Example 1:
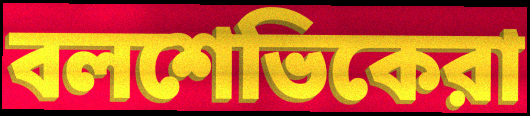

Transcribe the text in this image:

বলশেভিকেরা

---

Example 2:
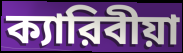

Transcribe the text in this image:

ক্যারিবীয়া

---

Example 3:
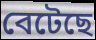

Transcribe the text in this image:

বেটেছে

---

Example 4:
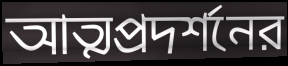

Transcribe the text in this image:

আত্মপ্রদর্শনের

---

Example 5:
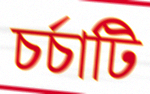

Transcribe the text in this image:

চর্চাটি